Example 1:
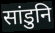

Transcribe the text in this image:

सांडुनि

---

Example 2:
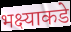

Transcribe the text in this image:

भक्ष्याकडे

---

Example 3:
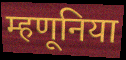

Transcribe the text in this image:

म्हणूनिया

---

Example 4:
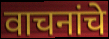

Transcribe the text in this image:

वाचनांचे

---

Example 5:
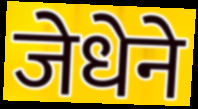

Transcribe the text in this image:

जेधेने